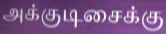
அக்குடிசைக்கு